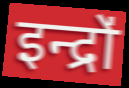
इन्द्रो॑